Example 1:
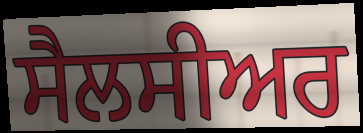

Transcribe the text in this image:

ਸੈਲਸੀਅਰ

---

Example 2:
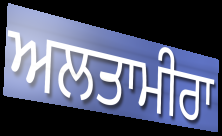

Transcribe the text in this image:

ਅਲਤਾਮੀਰਾ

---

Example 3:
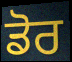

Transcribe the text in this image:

ਡੋਰ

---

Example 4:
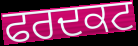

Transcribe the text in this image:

ਫਰਦਕਟ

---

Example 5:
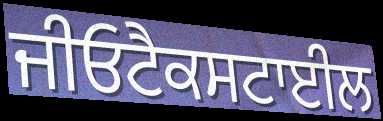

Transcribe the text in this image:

ਜੀਓਟੈਕਸਟਾਈਲ